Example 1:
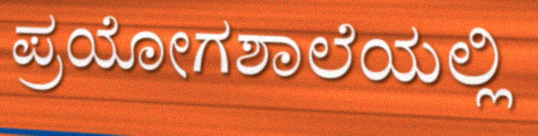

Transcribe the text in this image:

ಪ್ರಯೋಗಶಾಲೆಯಲ್ಲಿ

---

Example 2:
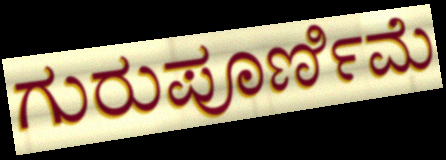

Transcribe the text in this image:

ಗುರುಪೂರ್ಣಿಮೆ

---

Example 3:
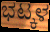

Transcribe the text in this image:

ಭಟ್ಕಳ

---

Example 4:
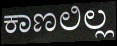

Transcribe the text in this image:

ಕಾಣಲಿಲ್ಲ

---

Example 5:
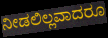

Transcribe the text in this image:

ನೀಡಲಿಲ್ಲವಾದರೂ